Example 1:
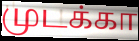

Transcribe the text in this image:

முடக்கா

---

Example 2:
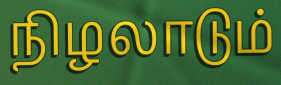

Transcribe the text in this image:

நிழலாடும்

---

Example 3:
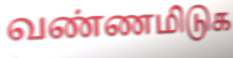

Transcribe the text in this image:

வண்ணமிடுக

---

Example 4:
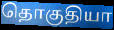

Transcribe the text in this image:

தொகுதியா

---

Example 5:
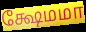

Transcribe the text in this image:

க்ஷேமமா